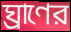
ঘ্রাণের